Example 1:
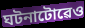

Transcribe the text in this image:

ঘটনাটোৱেও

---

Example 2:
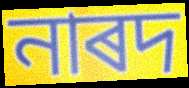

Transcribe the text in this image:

নাৰদ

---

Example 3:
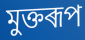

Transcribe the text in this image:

মুক্তৰূপ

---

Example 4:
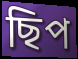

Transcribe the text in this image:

ছিপ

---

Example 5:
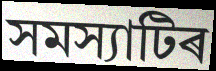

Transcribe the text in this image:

সমস্যাটিৰ